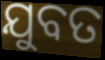
ଯୁବତ